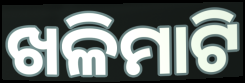
ଖଳିମାଟି